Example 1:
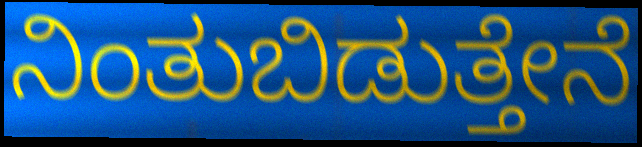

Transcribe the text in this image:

ನಿಂತುಬಿಡುತ್ತೇನೆ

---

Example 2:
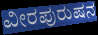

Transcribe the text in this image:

ವೀರಪುರುಷನ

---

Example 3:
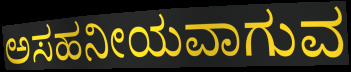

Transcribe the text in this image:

ಅಸಹನೀಯವಾಗುವ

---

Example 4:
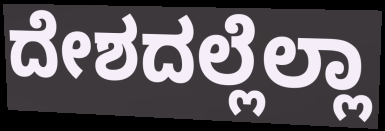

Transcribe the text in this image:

ದೇಶದಲ್ಲೆಲ್ಲಾ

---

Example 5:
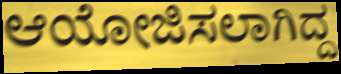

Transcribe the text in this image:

ಆಯೋಜಿಸಲಾಗಿದ್ದ